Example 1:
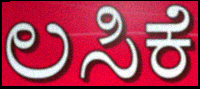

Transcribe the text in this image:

ಲಸಿಕೆ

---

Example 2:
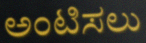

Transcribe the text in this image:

ಅಂಟಿಸಲು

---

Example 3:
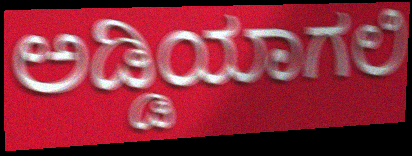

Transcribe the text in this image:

ಅಡ್ಡಿಯಾಗಲಿ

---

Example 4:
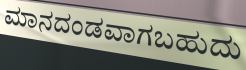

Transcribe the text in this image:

ಮಾನದಂಡವಾಗಬಹುದು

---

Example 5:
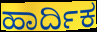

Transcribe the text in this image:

ಹಾರ್ದಿಕ